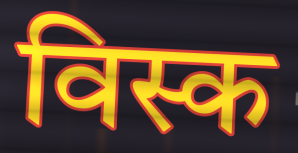
विस्क